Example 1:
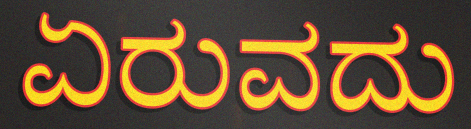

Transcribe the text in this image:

ಏರುವದು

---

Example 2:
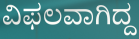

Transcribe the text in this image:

ವಿಫಲವಾಗಿದ್ದ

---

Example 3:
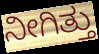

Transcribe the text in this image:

ನೀಗಿತ್ತು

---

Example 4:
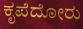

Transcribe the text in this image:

ಕೃಪೆದೋರು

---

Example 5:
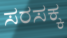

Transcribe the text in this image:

ಸರಸಕ್ಕ